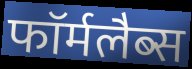
फॉर्मलैब्स